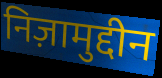
निज़ामुद्दीन